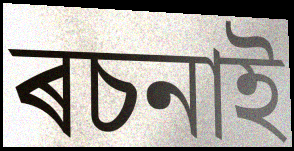
ৰচনাই